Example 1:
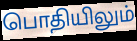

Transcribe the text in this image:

பொதியிலும்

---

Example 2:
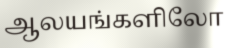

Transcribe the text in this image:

ஆலயங்களிலோ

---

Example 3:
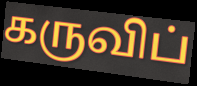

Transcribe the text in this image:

கருவிப்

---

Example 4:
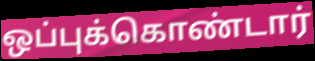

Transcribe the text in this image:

ஒப்புக்கொண்டார்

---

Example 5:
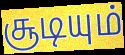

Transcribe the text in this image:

சூடியும்